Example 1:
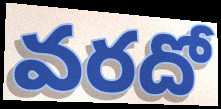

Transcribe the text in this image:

వరదో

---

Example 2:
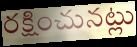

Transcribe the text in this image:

రక్షించునట్లు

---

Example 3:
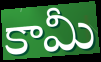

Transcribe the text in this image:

కామీ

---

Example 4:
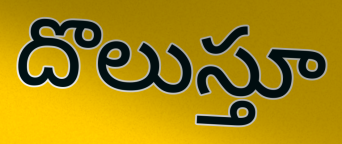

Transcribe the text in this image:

దొలుస్తూ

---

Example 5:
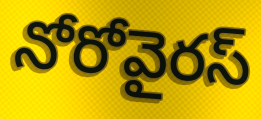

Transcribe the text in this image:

నోరోవైరస్